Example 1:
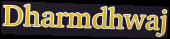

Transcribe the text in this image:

Dharmdhwaj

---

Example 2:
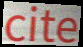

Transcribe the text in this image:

cite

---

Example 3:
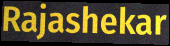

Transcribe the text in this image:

Rajashekar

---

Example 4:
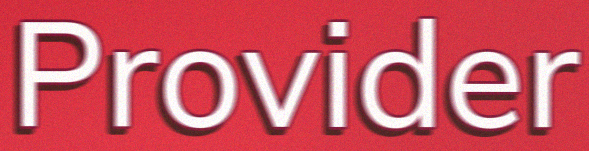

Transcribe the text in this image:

Provider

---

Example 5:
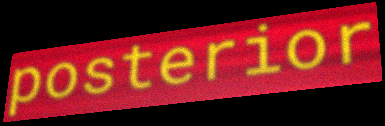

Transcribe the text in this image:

posterior